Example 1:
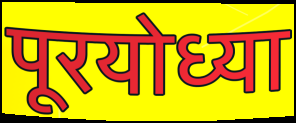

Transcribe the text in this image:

पूरयोध्या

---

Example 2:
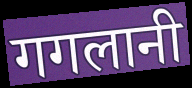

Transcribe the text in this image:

गगलानी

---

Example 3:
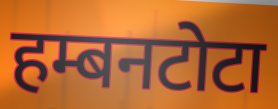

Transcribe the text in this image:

हम्बनटोटा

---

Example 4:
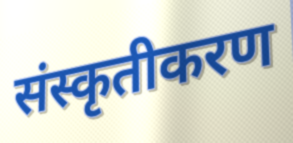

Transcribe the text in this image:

संस्कृतीकरण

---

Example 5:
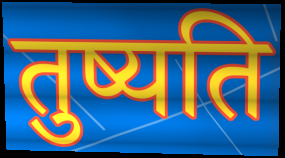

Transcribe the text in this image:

तुष्यति